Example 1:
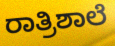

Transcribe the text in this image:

ರಾತ್ರಿಶಾಲೆ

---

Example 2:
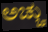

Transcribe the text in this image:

ಅಚ್ಚು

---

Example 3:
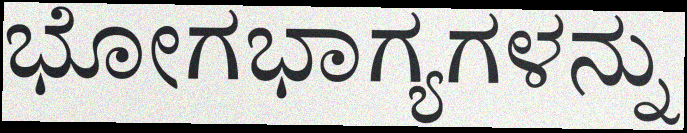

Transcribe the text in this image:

ಭೋಗಭಾಗ್ಯಗಳನ್ನು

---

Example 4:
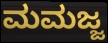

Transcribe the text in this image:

ಮಮಜ್ಜ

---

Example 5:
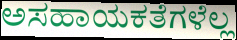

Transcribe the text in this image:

ಅಸಹಾಯಕತೆಗಳೆಲ್ಲ